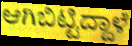
ಆಗಿಬಿಟ್ಟಿದ್ದಾಳೆ